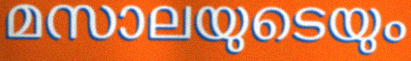
മസാലയുടെയും